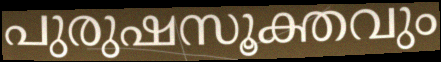
പുരുഷസൂക്തവും